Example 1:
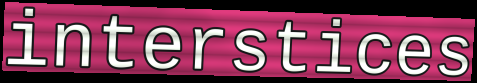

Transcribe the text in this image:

interstices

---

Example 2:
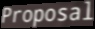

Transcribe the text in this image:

Proposal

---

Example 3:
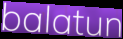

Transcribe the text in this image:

balatun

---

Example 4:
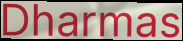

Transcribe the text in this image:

Dharmas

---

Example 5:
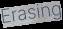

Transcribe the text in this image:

Erasing